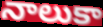
నాలుకా